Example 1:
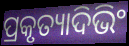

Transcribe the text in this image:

ପ୍ରକୃତ୍ୟାଦିଭିଂ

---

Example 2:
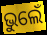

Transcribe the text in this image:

ଭୁଲେଁ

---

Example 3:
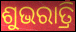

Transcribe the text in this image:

ଶୁଭରାତ୍ରି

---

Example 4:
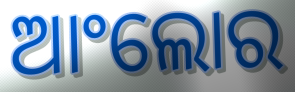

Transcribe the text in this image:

ଆଂଲୋର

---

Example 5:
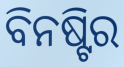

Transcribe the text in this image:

ବିନଷ୍ଟିର